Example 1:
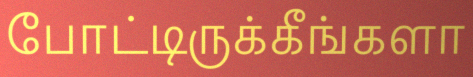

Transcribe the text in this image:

போட்டிருக்கீங்களா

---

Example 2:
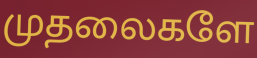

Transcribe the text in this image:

முதலைகளே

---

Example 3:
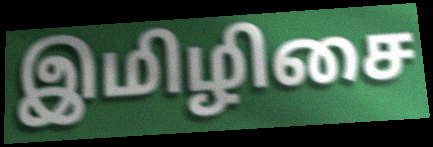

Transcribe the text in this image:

இமிழிசை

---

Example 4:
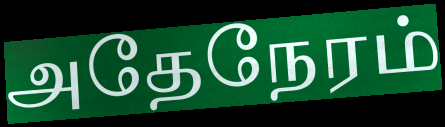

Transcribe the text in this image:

அதேநேரம்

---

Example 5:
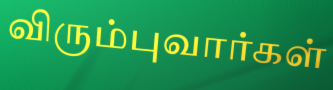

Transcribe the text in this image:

விரும்புவார்கள்